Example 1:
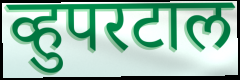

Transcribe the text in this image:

व्हुपरटाल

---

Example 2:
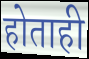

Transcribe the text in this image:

होताही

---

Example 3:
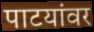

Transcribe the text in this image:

पाटयांवर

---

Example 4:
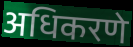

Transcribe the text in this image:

अधिकरणे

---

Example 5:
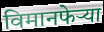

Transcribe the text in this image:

विमानफेऱ्या